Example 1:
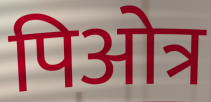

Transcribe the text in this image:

पिओत्र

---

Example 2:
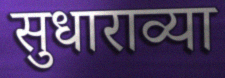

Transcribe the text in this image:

सुधाराव्या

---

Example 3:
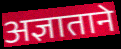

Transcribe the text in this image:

अज्ञाताने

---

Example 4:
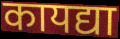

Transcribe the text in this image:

कायद्या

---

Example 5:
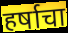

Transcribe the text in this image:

हर्षाचा